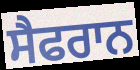
ਸੈਫਰਾਨ